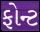
ફોન્ટ